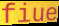
fiue